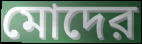
মোদের